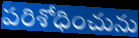
పరిశోధించును